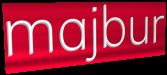
majbur